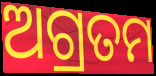
ଅଗ୍ରତମ